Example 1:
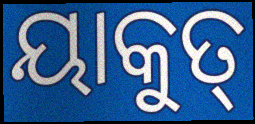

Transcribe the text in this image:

ୟାକୁତ୍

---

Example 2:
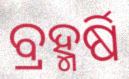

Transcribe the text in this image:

ବ୍ରହ୍ମର୍ଷି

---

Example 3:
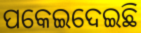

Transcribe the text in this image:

ପକେଇଦେଇଛି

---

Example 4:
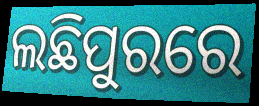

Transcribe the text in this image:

ଲଛିପୁରରେ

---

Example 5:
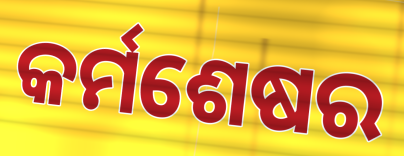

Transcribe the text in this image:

କର୍ମଶେଷର